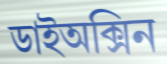
ডাইঅক্সিন